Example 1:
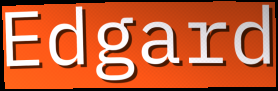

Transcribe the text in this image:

Edgard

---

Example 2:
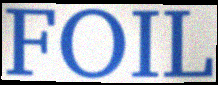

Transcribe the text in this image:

FOIL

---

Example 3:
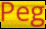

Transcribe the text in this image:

Peg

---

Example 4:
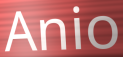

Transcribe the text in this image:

Anio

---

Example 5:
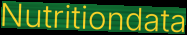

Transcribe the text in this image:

Nutritiondata